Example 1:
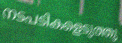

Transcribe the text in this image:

നടപടികളെടുത്തു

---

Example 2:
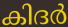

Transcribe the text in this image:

കിദർ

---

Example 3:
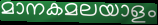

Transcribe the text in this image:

മാനകമലയാളം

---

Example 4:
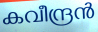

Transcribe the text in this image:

കവീന്ദ്രൻ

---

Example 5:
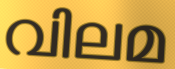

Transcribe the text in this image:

വിലമ